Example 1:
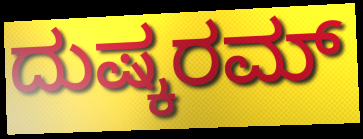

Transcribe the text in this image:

ದುಷ್ಕರಮ್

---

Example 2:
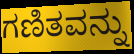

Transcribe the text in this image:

ಗಣಿತವನ್ನು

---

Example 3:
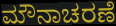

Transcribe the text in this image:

ಮೌನಾಚರಣೆ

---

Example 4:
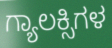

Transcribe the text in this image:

ಗ್ಯಾಲಕ್ಸಿಗಳ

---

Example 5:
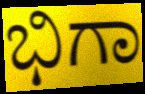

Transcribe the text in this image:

ಭಿಗಾ